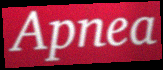
Apnea